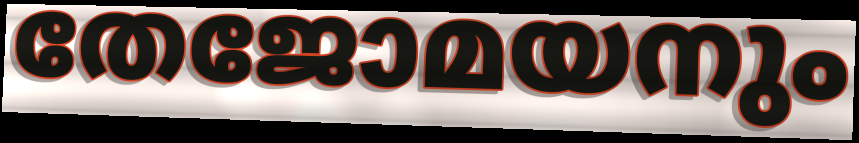
തേജോമയനും